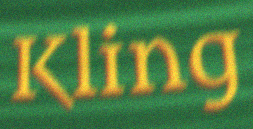
Kling